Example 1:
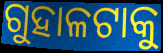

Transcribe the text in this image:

ଗୁହାଳଟାକୁ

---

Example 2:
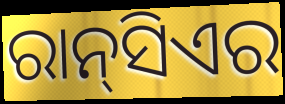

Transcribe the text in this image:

ରାନ୍‌ସିଏର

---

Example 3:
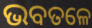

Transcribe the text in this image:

ଭବତଳେ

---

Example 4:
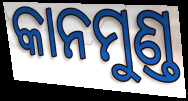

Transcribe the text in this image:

କାନମୁଣ୍ଡ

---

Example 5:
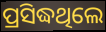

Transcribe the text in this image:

ପ୍ରସିଦ୍ଧଥିଲେ